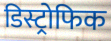
डिस्ट्रोफिक